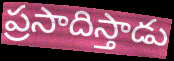
ప్రసాదిస్తాడు